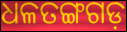
ଧଳତଙ୍ଗଗଡ଼